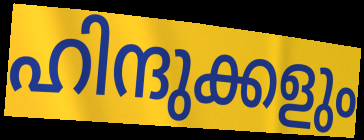
ഹിന്ദുക്കളും